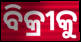
ବିକ୍ରୀକୁ